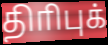
திரிபுக்